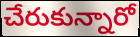
చేరుకున్నారో